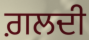
ਗ਼ਲਦੀ